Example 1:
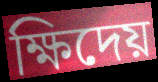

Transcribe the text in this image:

ক্ষিদেয়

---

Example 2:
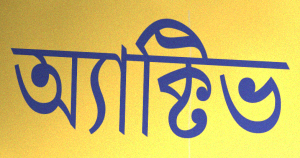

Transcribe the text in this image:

অ্যাক্টিভ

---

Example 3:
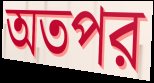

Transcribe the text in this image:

অতপর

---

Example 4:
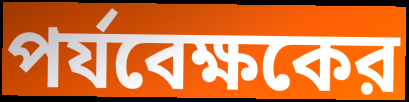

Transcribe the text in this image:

পর্যবেক্ষকের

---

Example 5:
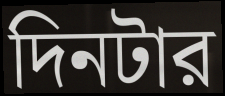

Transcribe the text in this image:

দিনটার